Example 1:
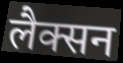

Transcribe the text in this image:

लैक्सन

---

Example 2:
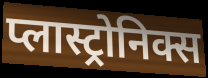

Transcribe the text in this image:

प्लास्ट्रोनिक्स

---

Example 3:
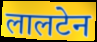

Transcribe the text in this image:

लालटेन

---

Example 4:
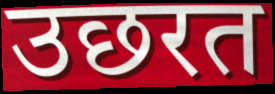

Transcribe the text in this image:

उछरत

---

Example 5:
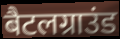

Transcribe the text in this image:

बैटलग्राउंड